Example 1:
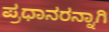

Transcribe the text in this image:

ಪ್ರಧಾನರನ್ನಾಗಿ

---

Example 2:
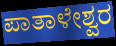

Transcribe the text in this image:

ಪಾತಾಳೇಶ್ವರ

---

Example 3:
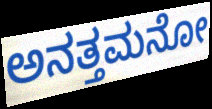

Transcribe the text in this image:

ಅನತ್ತಮನೋ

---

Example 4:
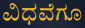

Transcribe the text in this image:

ವಿಧವೆಗೂ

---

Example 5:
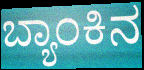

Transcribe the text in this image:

ಬ್ಯಾಂಕಿನ